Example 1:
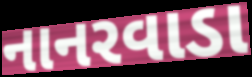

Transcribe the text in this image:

નાનરવાડા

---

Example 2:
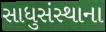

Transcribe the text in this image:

સાધુસંસ્થાના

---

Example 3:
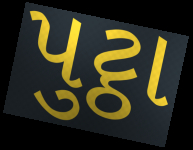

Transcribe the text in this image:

પુટ્ઠા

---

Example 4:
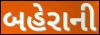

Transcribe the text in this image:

બહેરાની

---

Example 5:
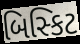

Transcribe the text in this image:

બિસ્કિટ